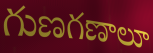
గుణగణాలూ